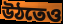
উঠতেও